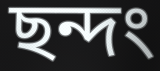
ছন্দং